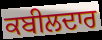
ਕਬੀਲਦਾਰ